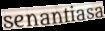
senantiasa